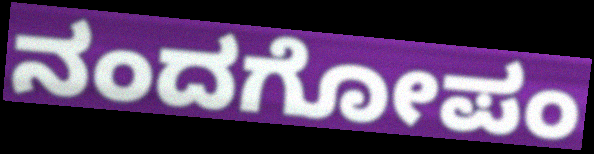
ನಂದಗೋಪಂ